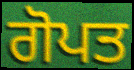
ਗੋਪਤ